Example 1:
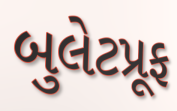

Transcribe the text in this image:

બુલેટપ્રૂફ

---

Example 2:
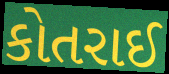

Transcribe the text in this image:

કોતરાઈ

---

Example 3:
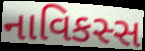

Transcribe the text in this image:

નાવિકસ્સ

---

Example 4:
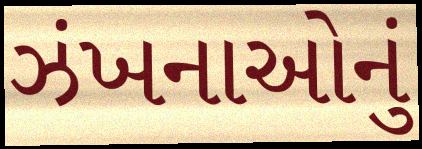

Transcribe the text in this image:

ઝંખનાઓનું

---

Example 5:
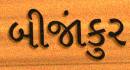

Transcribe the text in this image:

બીજાંકુર